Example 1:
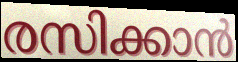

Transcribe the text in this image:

രസിക്കാൻ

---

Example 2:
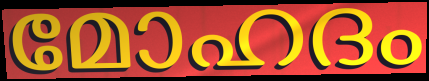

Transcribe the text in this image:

മോഹദം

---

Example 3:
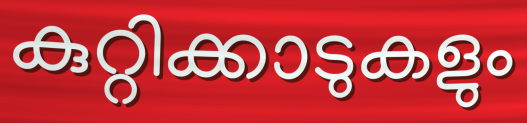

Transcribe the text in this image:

കുറ്റിക്കാടുകളും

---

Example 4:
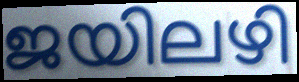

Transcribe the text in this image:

ജയിലഴി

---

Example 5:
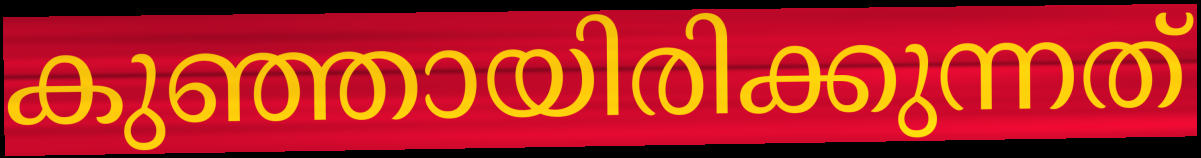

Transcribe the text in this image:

കുഞ്ഞായിരിക്കുന്നത്